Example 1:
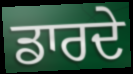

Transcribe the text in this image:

ਡਾਰਦੇ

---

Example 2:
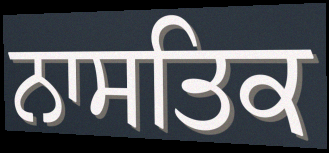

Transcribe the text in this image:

ਨਾਸਤਿਕ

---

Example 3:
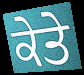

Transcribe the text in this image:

ਕੇਤੇ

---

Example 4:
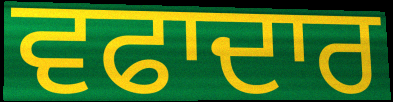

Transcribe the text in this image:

ਵਫਾਦਾਰ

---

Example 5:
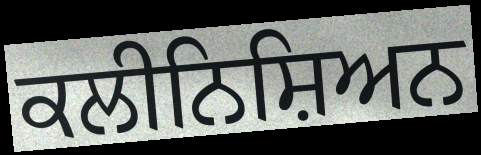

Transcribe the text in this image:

ਕਲੀਨਿਸ਼ਿਅਨ